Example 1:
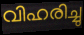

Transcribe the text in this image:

വിഹരിച്ചു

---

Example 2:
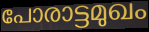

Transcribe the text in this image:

പോരാട്ടമുഖം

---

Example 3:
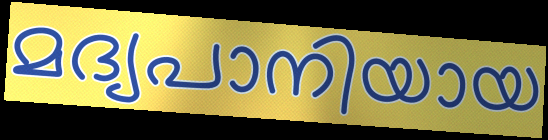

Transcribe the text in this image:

മദ്യപാനിയായ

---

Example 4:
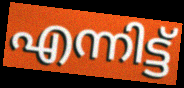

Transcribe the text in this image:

എന്നിട്ട്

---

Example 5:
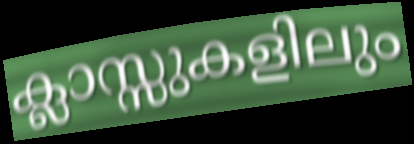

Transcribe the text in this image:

ക്ലാസ്സുകളിലും